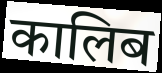
कालिब